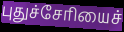
புதுச்சேரியைச்